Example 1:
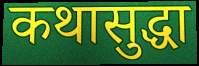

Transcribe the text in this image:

कथासुद्धा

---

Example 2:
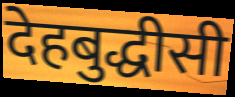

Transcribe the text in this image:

देहबुद्धीसी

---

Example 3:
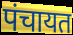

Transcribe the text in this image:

पंचायत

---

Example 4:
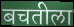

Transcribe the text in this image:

बचतीला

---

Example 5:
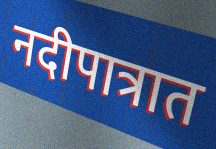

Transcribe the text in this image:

नदीपात्रात